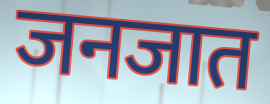
जनजात